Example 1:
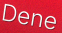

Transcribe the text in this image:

Dene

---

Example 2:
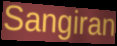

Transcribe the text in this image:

Sangiran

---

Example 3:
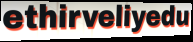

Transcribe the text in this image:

ethirveliyedu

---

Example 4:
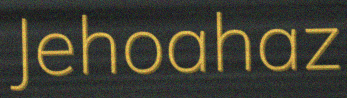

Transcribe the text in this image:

Jehoahaz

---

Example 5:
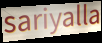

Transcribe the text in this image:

sariyalla